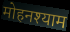
मोहनश्याम